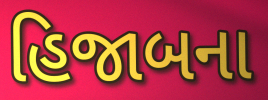
હિજાબના